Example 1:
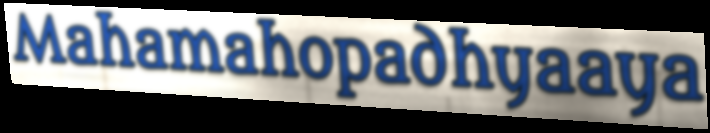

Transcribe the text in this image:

Mahamahopadhyaaya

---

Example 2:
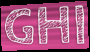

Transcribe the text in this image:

GHI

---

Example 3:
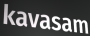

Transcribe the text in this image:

kavasam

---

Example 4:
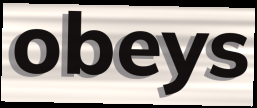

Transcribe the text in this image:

obeys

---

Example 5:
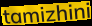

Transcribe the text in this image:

tamizhini